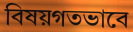
বিষয়গতভাবে